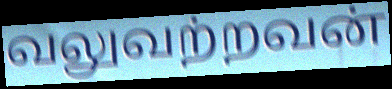
வலுவற்றவன்